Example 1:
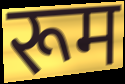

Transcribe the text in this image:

रूम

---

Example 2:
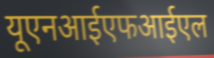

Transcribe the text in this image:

यूएनआईएफआईएल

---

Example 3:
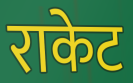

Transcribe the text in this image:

राकेट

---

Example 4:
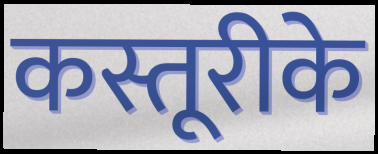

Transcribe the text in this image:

कस्तूरीके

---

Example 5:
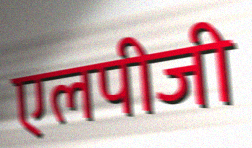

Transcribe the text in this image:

एलपीजी